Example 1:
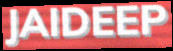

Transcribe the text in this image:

JAIDEEP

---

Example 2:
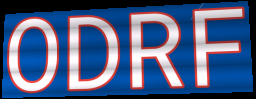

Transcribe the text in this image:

ODRF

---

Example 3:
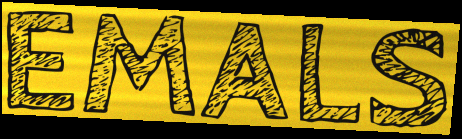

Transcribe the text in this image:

EMALS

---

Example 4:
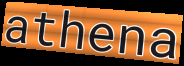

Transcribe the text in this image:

athena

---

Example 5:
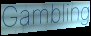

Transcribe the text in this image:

Gambling